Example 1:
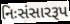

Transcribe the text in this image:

નિઃસંસારરૂપ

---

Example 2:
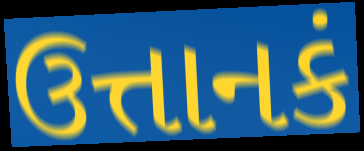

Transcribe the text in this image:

ઉત્તાનકં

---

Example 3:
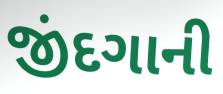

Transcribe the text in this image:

જીંદગાની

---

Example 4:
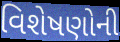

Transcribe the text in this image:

વિશેષણોની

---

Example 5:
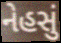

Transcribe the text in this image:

નેહસું